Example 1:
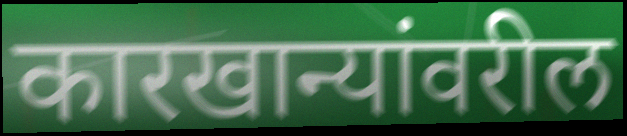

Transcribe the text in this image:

कारखान्यांवरील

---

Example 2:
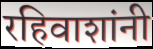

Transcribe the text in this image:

रहिवाशांनी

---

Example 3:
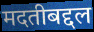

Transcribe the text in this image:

मदतीबद्दल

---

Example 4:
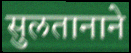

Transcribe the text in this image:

सुलतानाने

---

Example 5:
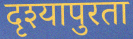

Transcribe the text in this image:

दृश्यापुरता